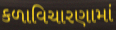
કળાવિચારણામાં